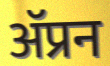
ॲप्रन